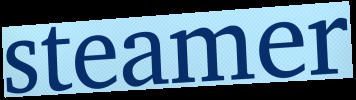
steamer